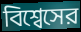
বিশ্বেসের